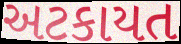
અટકાયત